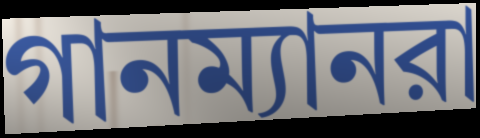
গানম্যানরা